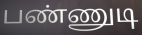
பண்ணுடி